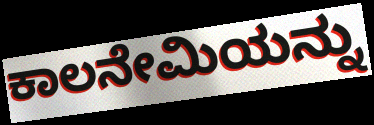
ಕಾಲನೇಮಿಯನ್ನು